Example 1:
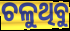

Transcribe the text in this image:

ଚଳୁଥିବୁ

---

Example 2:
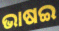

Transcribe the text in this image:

ଭାଷଇ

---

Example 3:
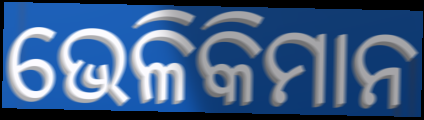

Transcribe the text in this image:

ଭେଳିକିମାନ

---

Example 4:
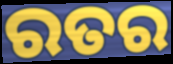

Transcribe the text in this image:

ରତର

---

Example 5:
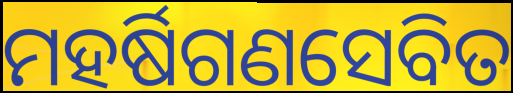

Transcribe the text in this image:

ମହର୍ଷିଗଣସେବିତ